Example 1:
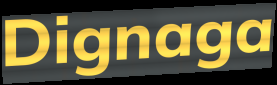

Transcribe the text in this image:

Dignaga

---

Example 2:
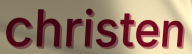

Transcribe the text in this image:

christen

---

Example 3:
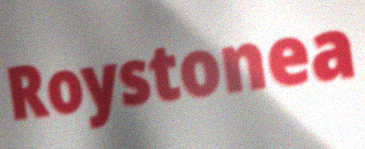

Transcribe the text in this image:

Roystonea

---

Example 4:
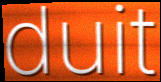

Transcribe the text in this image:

duit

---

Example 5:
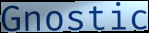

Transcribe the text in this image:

Gnostic